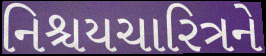
નિશ્ચયચારિત્રને